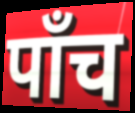
पॉंच